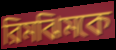
রিমঝিমকে